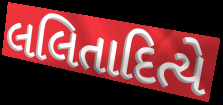
લલિતાદિત્યે